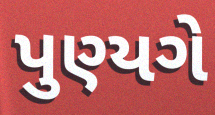
પુણ્યગે